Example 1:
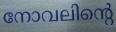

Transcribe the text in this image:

നോവലിന്റെ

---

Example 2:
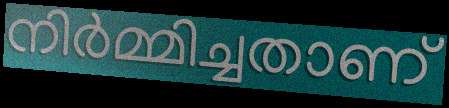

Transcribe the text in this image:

നിർമ്മിച്ചതാണ്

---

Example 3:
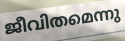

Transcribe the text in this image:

ജീവിതമെന്നു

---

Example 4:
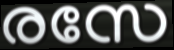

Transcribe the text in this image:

രസേ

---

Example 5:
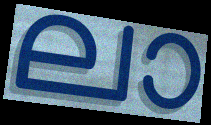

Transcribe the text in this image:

ലാ